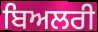
ਬਿਅਲਰੀ